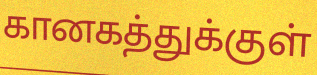
கானகத்துக்குள்